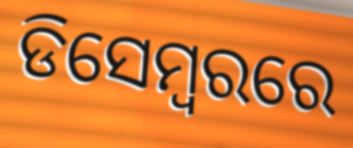
ଡିସେମ୍ବରରେ